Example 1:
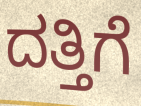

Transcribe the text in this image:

ದತ್ತಿಗೆ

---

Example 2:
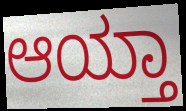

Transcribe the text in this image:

ಆಯ್ತಾ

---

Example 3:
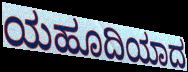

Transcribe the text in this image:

ಯಹೂದಿಯಾದ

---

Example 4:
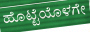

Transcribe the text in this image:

ಹೊಟ್ಟೆಯೊಳಗೇ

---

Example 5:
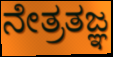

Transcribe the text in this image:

ನೇತ್ರತಜ್ಞ